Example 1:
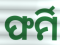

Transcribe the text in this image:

ଫର୍ମି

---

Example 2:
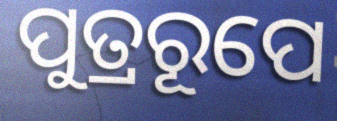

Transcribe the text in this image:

ପୁତ୍ରରୂପେ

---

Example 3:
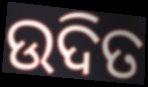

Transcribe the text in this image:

ଉଦିତ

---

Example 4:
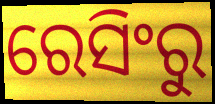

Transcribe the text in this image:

ରେସିଂରୁ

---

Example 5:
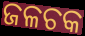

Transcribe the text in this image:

ଜଳଚକ